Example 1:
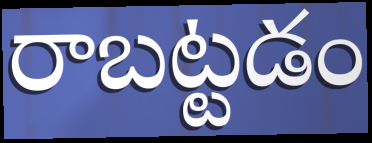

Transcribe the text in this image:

రాబట్టడం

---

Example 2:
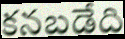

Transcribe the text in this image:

కనబడేది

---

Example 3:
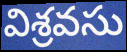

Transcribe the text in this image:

విశ్రవసు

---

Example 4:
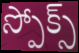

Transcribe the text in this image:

స్పోక్స్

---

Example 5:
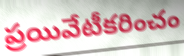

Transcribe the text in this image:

ప్రయివేటీకరించం